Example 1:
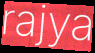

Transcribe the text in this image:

rajya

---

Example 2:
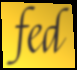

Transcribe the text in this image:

fed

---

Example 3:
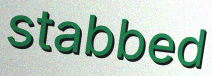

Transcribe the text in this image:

stabbed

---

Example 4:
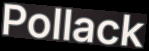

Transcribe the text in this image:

Pollack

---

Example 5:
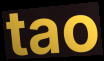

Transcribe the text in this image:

tao